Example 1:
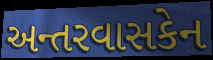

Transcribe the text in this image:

અન્તરવાસકેન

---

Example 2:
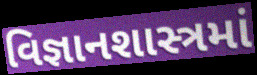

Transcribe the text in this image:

વિજ્ઞાનશાસ્ત્રમાં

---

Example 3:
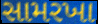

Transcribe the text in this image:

સામરખા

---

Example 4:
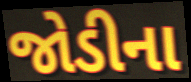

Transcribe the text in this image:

જોડીના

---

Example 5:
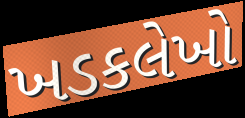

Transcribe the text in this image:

ખડકલેખો